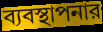
ব্যবস্থাপনার